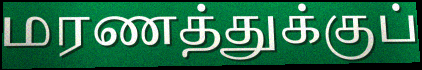
மரணத்துக்குப்